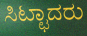
ಸಿಟ್ಟಾದರು